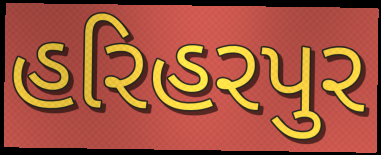
હરિહરપુર